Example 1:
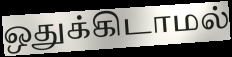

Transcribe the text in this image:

ஒதுக்கிடாமல்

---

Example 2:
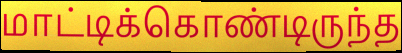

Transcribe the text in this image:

மாட்டிக்கொண்டிருந்த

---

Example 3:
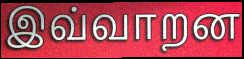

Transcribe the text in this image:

இவ்வாறன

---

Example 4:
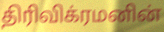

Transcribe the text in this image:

திரிவிக்ரமனின்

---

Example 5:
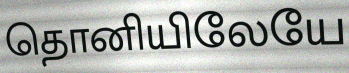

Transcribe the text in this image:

தொனியிலேயே